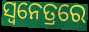
ସ୍ୱନେତ୍ରରେ